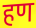
हण